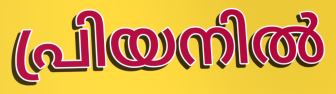
പ്രിയനിൽ